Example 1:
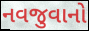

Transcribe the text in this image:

નવજુવાનો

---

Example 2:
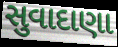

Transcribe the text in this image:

સુવાદાણા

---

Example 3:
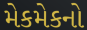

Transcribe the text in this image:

મેકમેકનો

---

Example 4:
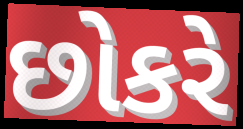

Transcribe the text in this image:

છોકરે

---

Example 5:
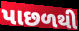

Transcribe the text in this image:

પાછળથી